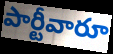
పార్టీవారూ